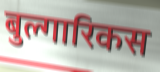
बुल्गारिकस